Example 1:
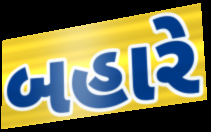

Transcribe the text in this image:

બહારે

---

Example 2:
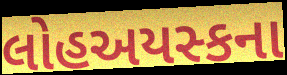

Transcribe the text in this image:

લોહઅયસ્કના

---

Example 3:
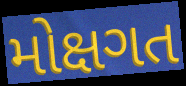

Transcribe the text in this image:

મોક્ષગત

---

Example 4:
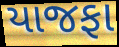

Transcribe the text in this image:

યાજફા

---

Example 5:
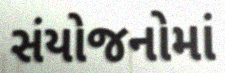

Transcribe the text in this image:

સંયોજનોમાં